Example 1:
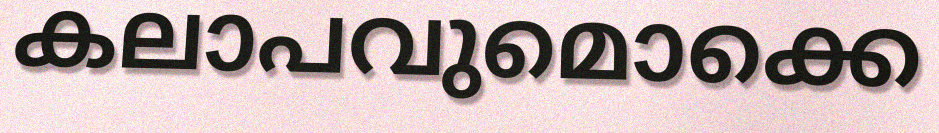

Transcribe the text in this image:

കലാപവുമൊക്കെ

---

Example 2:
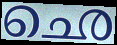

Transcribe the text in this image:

ഛെ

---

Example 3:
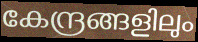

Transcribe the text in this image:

കേന്ദ്രങ്ങളിലും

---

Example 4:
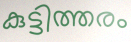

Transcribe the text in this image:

കുട്ടിത്തരം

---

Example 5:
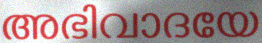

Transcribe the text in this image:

അഭിവാദയേ